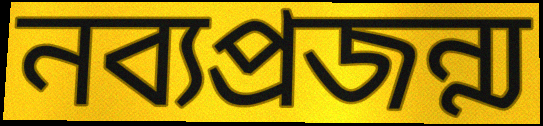
নব্যপ্রজন্ম